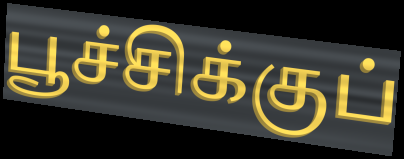
பூச்சிக்குப்